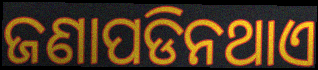
ଜଣାପଡିନଥାଏ